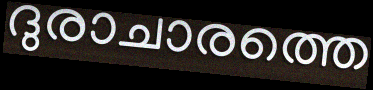
ദുരാചാരത്തെ